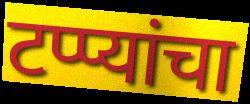
टप्प्यांचा